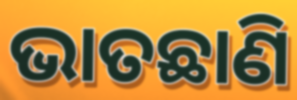
ଭାତଛାଣି